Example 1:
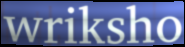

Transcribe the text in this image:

wriksho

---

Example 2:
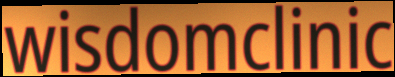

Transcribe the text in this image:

wisdomclinic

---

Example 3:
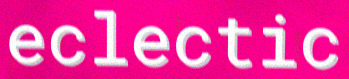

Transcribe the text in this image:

eclectic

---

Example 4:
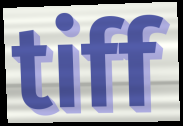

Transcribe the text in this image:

tiff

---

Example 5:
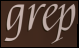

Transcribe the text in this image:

grep